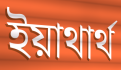
ইয়াথার্থ